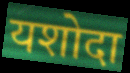
यशोदा